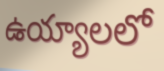
ఉయ్యాలలో